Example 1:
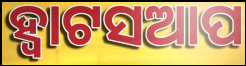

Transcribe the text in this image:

ହ୍ୱାଟସଆପ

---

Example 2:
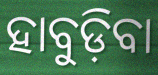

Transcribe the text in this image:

ହାବୁଡ଼ିବା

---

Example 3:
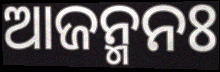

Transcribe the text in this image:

ଆଜନ୍ମନଃ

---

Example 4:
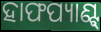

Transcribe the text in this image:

ହାଫପ୍ୟାଣ୍ଟ୍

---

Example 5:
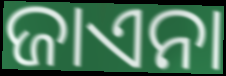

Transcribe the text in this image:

ଜାଏନା